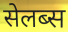
सेलब्स